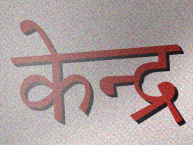
केन्द्र